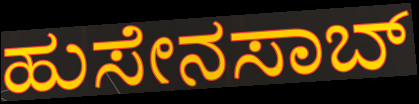
ಹುಸೇನಸಾಬ್